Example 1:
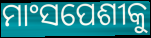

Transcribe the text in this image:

ମାଂସପେଶୀକୁ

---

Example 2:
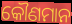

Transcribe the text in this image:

କୌଣମାନ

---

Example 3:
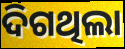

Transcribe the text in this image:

ଦିଗଥିଲା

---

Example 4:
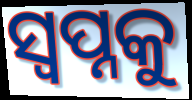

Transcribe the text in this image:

ସ୍ୱପ୍ନକୁ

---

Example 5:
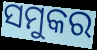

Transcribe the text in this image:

ସମୁକର